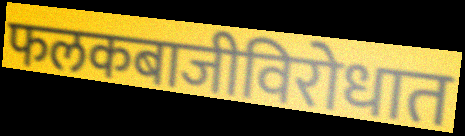
फलकबाजीविरोधात